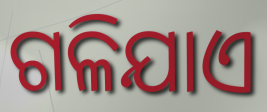
ଗଳିଯାଏ